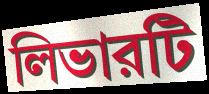
লিভারটি